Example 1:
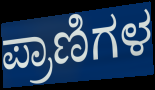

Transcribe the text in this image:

ಪ್ರಾಣಿಗಳ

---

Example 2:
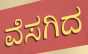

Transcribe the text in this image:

ವೆಸಗಿದ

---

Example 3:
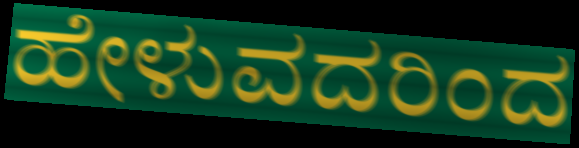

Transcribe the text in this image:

ಹೇಳುವದರಿಂದ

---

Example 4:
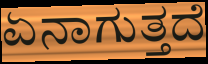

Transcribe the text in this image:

ಏನಾಗುತ್ತದೆ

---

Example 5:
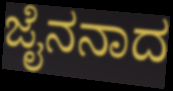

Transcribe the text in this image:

ಜೈನನಾದ